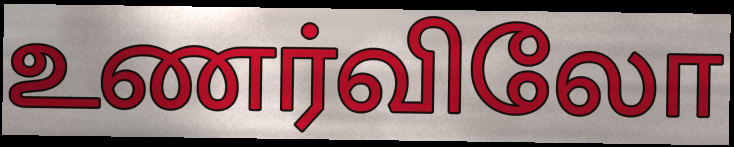
உணர்விலோ